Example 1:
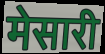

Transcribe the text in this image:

मेसारी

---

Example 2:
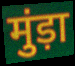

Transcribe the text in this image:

मुंड़ा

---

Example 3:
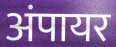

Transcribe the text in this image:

अंपायर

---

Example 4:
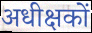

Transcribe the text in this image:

अधीक्षकों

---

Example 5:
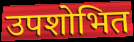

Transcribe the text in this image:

उपशोभित